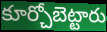
కూర్చోబెట్టారు